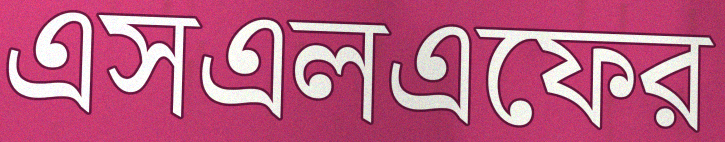
এসএলএফের